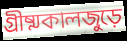
গ্রীষ্মকালজুড়ে